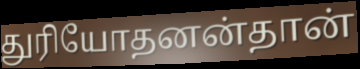
துரியோதனன்தான்